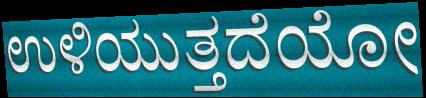
ಉಳಿಯುತ್ತದೆಯೋ